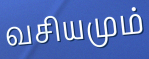
வசியமும்